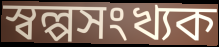
স্বল্পসংখ্যক